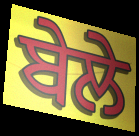
ਬੇਲੇ